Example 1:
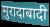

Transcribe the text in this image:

मुरादाबादी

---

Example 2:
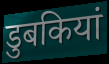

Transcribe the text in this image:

डुबकियां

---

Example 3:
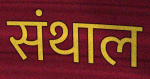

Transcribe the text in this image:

संथाल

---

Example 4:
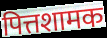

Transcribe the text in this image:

पित्तशामक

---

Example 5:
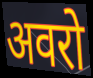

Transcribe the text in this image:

अवरो